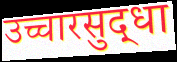
उच्चारसुद्धा